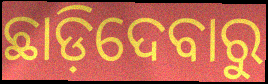
ଛାଡ଼ିଦେବାରୁ